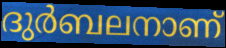
ദുർബലനാണ്